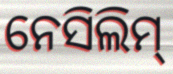
ନେସିଲିମ୍